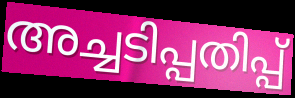
അച്ചടിപ്പതിപ്പ്